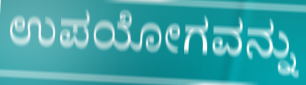
ಉಪಯೋಗವನ್ನು